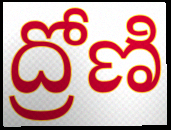
ద్రోణి